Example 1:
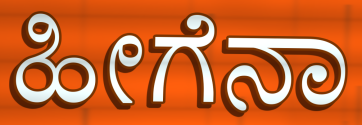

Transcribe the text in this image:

ಹೀಗೆನಾ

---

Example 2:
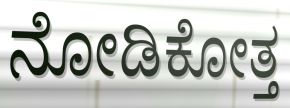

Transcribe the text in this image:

ನೋಡಿಕೋತ್ತ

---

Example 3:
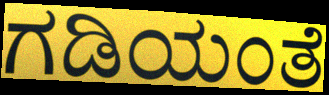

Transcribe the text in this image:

ಗಡಿಯಂತೆ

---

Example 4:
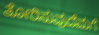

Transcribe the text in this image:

ತೋರಿಸುವುದೆಮಗೆ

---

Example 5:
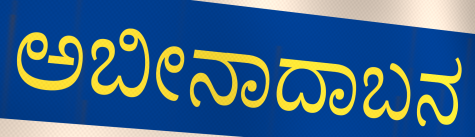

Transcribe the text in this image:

ಅಬೀನಾದಾಬನ